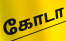
கோடா